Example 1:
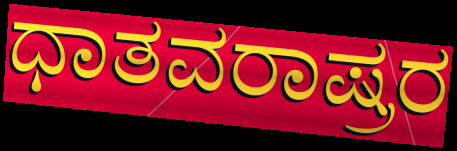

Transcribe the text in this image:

ಧಾತವರಾಷ್ರರ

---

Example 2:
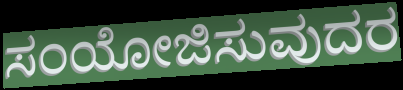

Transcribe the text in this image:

ಸಂಯೋಜಿಸುವುದರ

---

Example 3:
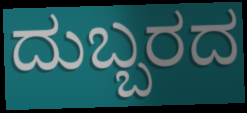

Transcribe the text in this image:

ದುಬ್ಬರದ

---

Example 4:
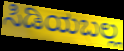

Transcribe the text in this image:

ಸಿಡಿಯಬಲ್ಲ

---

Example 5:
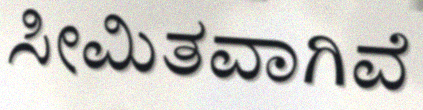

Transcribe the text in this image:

ಸೀಮಿತವಾಗಿವೆ